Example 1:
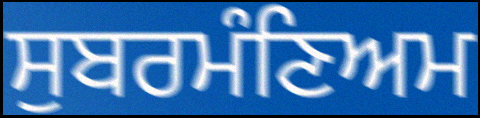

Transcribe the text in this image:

ਸੁਬਰਮੰਣਿਅਮ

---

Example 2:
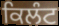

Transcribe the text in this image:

ਕਿਲੰਟ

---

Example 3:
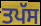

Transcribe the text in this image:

ਤਪੱਸ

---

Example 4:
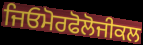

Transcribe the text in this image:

ਜਿਓਮੋਰਫੋਲੋਜੀਕਲ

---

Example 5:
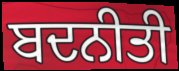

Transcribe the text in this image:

ਬਦਨੀਤੀ